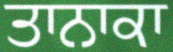
ਤਾਨਾਕਾ